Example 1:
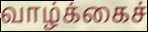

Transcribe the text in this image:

வாழ்க்கைச்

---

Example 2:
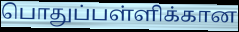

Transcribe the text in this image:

பொதுப்பள்ளிக்கான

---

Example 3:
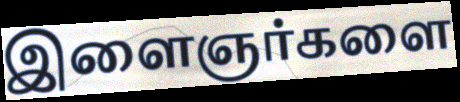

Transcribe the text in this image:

இளைஞர்களை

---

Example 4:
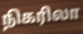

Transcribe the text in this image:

நிகரிலா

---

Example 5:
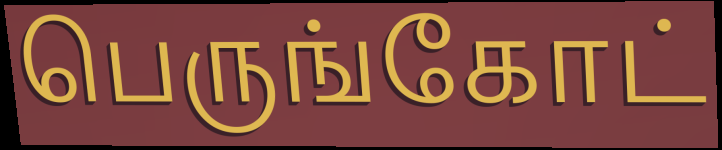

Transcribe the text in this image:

பெருங்கோட்